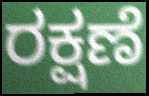
ರಕ್ಷಣೆ